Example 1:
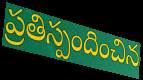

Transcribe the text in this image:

ప్రతిస్పందించిన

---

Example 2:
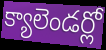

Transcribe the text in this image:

క్యాలెండర్లో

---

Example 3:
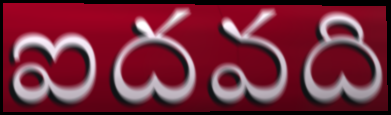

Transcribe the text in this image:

ఐదవది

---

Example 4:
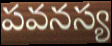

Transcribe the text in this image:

పవనస్య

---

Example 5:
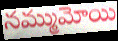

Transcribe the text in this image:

నమ్ముమోయి